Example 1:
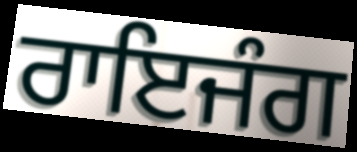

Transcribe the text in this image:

ਰਾਇਜੰਗ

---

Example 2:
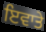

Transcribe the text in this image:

ਇਵਾਤੇ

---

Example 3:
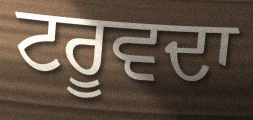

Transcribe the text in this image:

ਟਰੂਵਦਾ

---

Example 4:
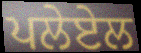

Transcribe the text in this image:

ਪਲੇਏਲ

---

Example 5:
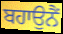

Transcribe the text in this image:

ਬਹਾਉਨੈਂ